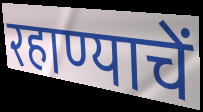
रहाण्याचें